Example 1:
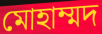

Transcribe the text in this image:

মোহাম্মদ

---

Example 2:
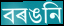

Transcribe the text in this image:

বৰঙনি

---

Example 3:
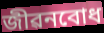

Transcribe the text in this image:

জীৱনবোধ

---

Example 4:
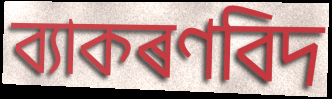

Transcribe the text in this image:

ব্যাকৰণবিদ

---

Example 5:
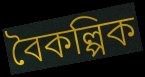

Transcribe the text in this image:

বৈকল্পিক